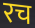
रच